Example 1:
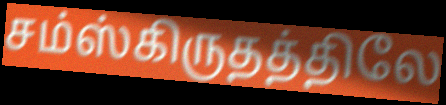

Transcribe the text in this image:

சம்ஸ்கிருதத்திலே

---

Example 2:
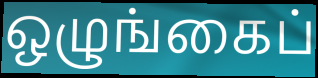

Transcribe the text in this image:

ஒழுங்கைப்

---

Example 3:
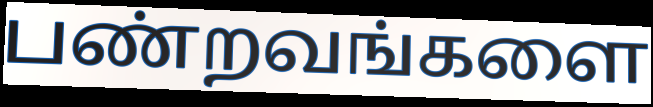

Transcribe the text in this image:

பண்றவங்களை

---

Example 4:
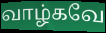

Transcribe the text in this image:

வாழ்கவே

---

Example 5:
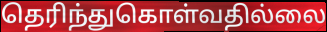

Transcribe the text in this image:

தெரிந்துகொள்வதில்லை